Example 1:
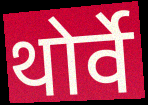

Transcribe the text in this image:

थोर्वे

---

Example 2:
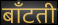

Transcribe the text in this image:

बाँटती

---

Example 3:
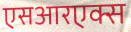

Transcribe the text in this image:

एसआरएक्स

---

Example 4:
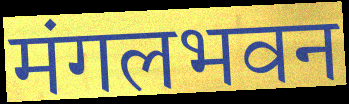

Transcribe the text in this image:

मंगलभवन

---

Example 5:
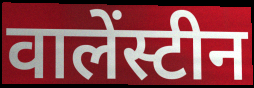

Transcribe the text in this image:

वालेंस्टीन